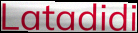
Latadidi